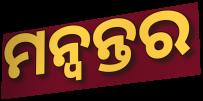
ମନ୍ବନ୍ତର